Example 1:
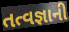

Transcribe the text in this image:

તત્વજ્ઞાની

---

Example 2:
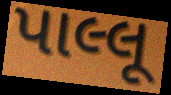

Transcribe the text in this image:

પાલ્લૂ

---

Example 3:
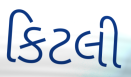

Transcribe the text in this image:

કિટલી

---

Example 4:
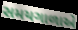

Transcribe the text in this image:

સમયગાળાએ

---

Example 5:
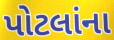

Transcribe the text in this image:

પોટલાંના